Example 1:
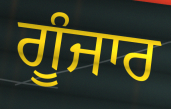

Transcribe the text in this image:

ਗੂੰਜਾਰ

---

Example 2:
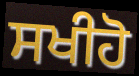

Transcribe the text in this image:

ਸਖੀਹੋ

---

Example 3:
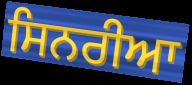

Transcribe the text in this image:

ਸਿਨਰੀਆ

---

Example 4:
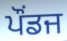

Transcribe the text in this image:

ਪੌਂਡਜ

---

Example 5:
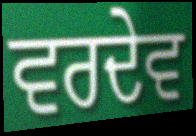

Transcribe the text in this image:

ਵਰਦੇਵ